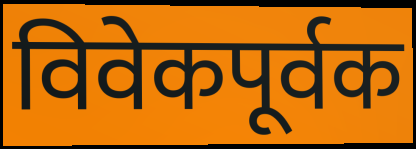
विवेकपूर्वक